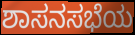
ಶಾಸನಸಭೆಯ